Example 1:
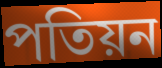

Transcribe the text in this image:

পতিয়ন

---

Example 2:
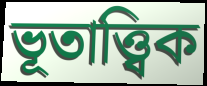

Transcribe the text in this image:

ভূতাত্ত্বিক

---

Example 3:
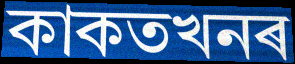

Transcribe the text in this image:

কাকতখনৰ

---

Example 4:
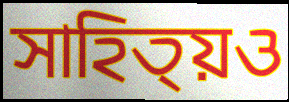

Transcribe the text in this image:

সাহিত্য়ও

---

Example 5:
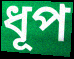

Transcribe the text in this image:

ধূপ